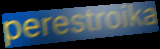
perestroika